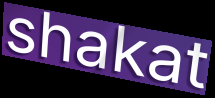
shakat